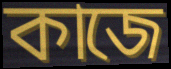
কাজে